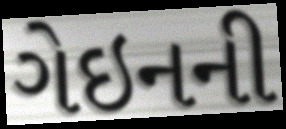
ગેઇનની